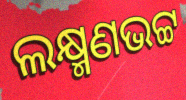
ଲକ୍ଷ୍ମଣଭଟ୍ଟ